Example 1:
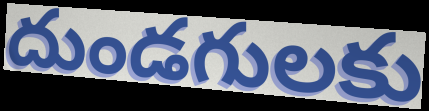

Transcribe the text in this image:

దుండగులకు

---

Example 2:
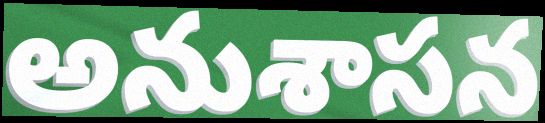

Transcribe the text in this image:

అనుశాసన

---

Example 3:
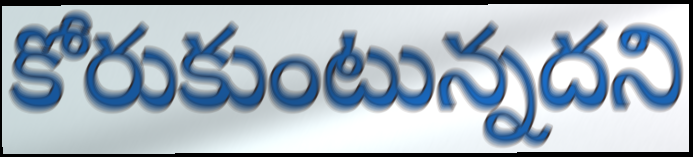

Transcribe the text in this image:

కోరుకుంటున్నదని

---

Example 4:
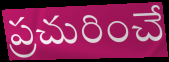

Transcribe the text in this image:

ప్రచురించే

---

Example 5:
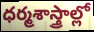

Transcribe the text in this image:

ధర్మశాస్త్రాల్లో